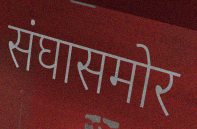
संघासमोर